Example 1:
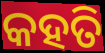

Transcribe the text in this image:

କହତି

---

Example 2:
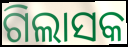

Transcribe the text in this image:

ଗିଲାସକ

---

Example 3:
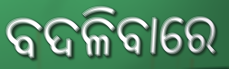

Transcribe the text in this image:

ବଦଳିବାରେ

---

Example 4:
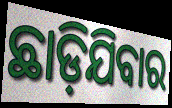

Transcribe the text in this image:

ଛାଡ଼ିଯିବାର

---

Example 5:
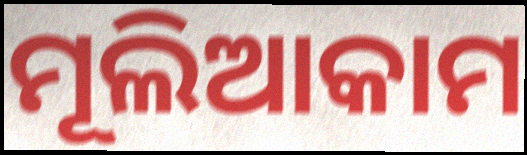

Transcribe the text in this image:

ମୂଲିଆକାମ